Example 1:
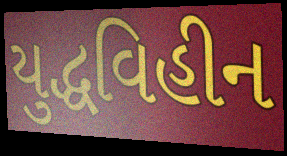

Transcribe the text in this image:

યુદ્ધવિહીન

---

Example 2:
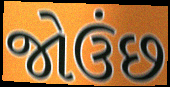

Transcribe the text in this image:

જોઉંછ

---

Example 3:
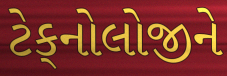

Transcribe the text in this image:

ટેક્‌નોલોજીને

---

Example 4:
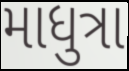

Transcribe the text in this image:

માધુત્રા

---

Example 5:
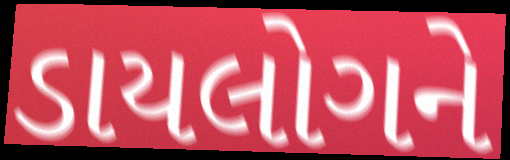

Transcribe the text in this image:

ડાયલોગને